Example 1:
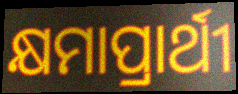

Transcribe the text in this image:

କ୍ଷମାପ୍ରାର୍ଥୀ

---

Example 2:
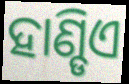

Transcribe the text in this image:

ହାଣ୍ଡିଏ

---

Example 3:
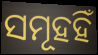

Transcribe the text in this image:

ସମୂହହିଁ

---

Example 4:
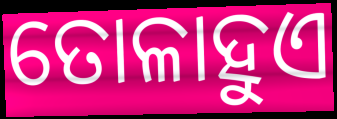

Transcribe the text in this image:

ତୋଳାହୁଏ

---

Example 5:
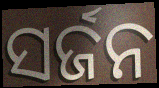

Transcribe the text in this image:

ସର୍ଜନ